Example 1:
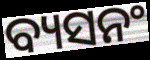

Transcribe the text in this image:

ବ୍ୟସନଂ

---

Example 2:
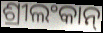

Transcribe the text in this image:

ଶ୍ରୀଲଂକାନ୍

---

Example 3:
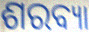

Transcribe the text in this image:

ଶରବ୍ୟା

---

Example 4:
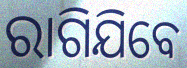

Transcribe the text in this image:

ରାଗିଯିବେ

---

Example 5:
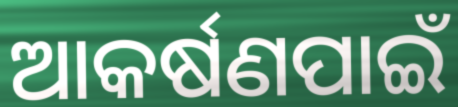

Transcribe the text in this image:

ଆକର୍ଷଣପାଇଁ